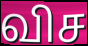
விச